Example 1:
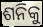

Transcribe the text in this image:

ଶନିକୁ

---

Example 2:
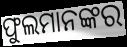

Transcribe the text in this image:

ଫୁଲମାନଙ୍କର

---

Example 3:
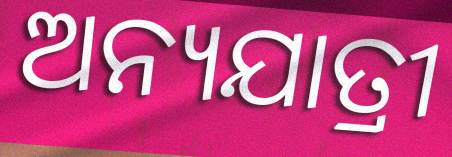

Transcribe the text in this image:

ଅନ୍ଯଯାତ୍ରୀ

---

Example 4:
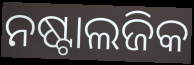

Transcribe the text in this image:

ନଷ୍ଟାଲଜିକ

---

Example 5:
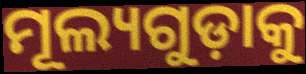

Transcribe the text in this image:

ମୂଲ୍ୟଗୁଡ଼ାକୁ